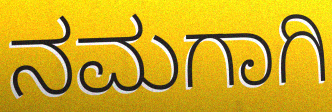
ನಮಗಾಗಿ